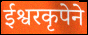
ईश्वरकृपेने